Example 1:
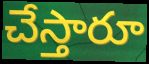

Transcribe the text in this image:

చేస్తారూ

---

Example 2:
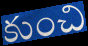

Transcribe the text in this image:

కుంచి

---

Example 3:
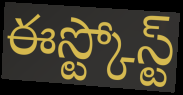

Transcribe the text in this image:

ఈస్ట్కోస్ట్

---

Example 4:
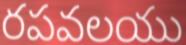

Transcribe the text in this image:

రపవలయు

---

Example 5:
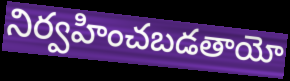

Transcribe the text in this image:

నిర్వహించబడతాయో